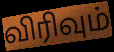
விரிவும்